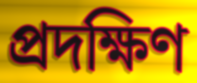
প্ৰদক্ষিণ